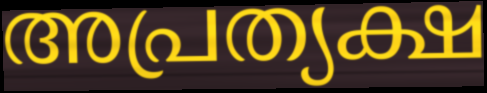
അപ്രത്യക്ഷ